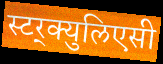
स्टर्क्युलिएसी